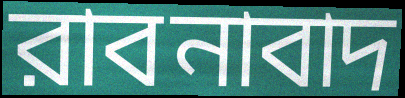
রাবনাবাদ